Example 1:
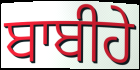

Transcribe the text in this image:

ਬਾਬੀਹੇ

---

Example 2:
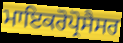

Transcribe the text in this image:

ਮਾਇਕਰੋਪ੍ਰੋਸੈਸਰ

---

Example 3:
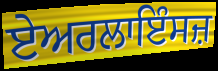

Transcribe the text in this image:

ਏਅਰਲਾਇੰਸਜ਼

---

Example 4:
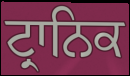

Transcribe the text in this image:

ਟ੍ਰਾਨਿਕ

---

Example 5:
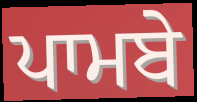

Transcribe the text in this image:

ਪਾਮਬੇ